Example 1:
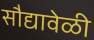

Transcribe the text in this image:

सौद्यावेळी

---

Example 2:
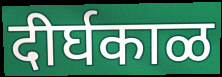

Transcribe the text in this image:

दीर्घकाळ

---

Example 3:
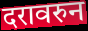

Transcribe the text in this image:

दरावरुन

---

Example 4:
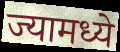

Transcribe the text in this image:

ज्यामध्ये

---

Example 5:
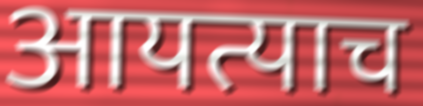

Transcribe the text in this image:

आयत्याच